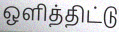
ஒளித்திட்டு